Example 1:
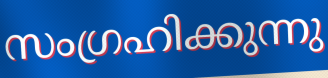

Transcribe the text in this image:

സംഗ്രഹിക്കുന്നു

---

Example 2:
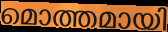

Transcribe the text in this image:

മൊത്തമായി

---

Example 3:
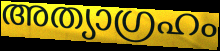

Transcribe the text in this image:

അത്യാഗ്രഹം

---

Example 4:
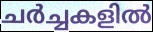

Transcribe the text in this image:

ചർച്ചകളിൽ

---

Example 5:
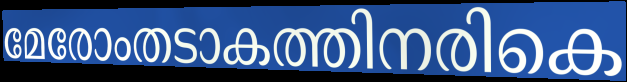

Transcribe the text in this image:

മേരോംതടാകത്തിനരികെ